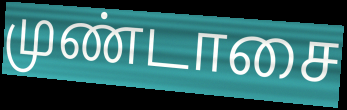
முண்டாசை